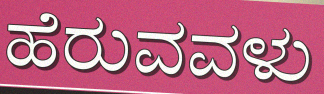
ಹೆರುವವಳು